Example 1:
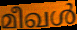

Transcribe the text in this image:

മീഖൾ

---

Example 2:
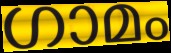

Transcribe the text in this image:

ഗാമം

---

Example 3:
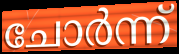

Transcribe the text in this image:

ചോർന്ന്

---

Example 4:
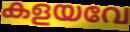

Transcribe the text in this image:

കളയവേ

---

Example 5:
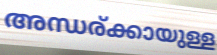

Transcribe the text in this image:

അന്ധര്ക്കായുള്ള